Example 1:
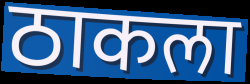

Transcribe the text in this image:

ठाकला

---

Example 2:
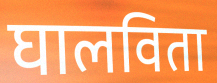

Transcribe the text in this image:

घालविता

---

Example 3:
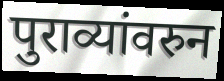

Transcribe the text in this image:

पुराव्यांवरुन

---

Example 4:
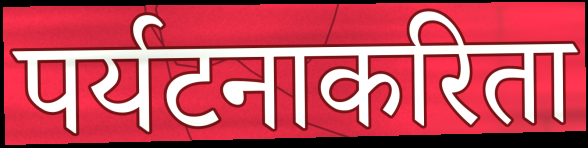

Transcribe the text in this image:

पर्यटनाकरिता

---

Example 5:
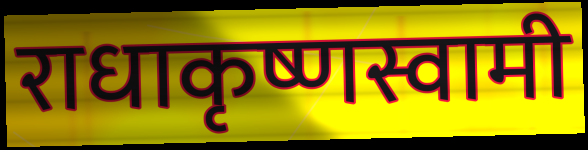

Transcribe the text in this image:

राधाकृष्णस्वामी